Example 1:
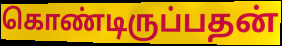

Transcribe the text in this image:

கொண்டிருப்பதன்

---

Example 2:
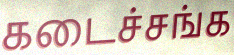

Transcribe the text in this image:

கடைச்சங்க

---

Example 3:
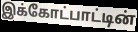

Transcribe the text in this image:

இக்கோட்பாட்டின்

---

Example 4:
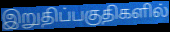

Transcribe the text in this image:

இறுதிப்பகுதிகளில்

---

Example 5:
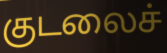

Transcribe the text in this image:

குடலைச்